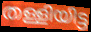
തള്ളിയിട്ട